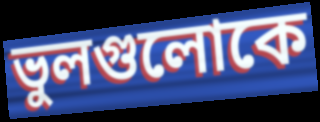
ভুলগুলোকে